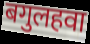
बगुलहवा